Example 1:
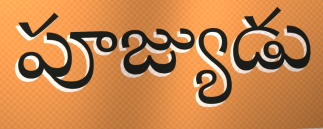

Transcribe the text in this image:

పూజ్యుడు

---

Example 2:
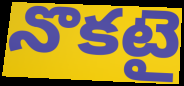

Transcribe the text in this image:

నొకటై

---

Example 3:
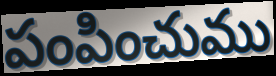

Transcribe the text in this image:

పంపించుము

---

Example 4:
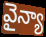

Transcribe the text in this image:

వైన్యా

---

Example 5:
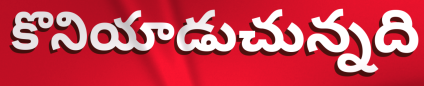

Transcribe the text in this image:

కొనియాడుచున్నది